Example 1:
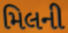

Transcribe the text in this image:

મિલની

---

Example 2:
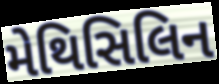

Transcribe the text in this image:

મેથિસિલિન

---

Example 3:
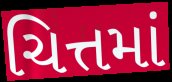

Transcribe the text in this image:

ચિત્તમાં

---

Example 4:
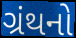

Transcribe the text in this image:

ગ્રંથનો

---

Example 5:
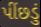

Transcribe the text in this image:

પીંછડું